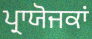
ਪ੍ਰਾਯੋਜਕਾਂ